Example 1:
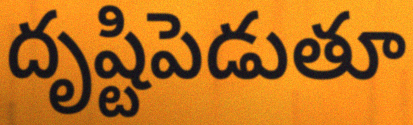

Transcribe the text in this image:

దృష్టిపెడుతూ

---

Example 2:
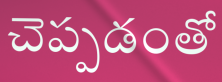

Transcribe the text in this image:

చెప్పడంతో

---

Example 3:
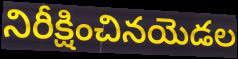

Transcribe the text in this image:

నిరీక్షించినయెడల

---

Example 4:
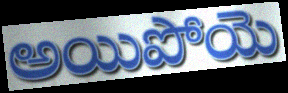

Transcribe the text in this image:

అయిపోయె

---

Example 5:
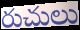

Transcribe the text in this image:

రుచులు